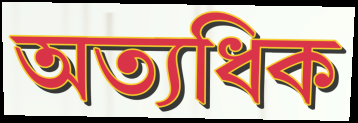
অত্যধিক